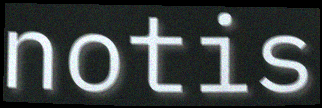
notis